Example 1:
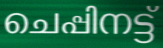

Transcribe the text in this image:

ചെപ്പിനട്ട്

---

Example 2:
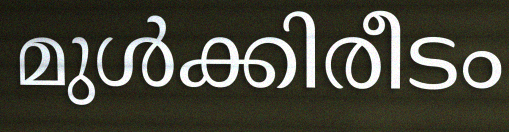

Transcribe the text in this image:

മുൾക്കിരീടം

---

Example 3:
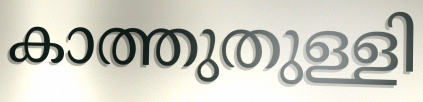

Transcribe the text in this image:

കാത്തുതുള്ളി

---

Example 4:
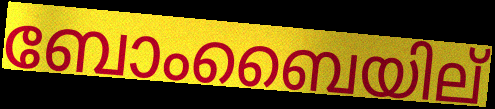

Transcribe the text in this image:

ബോംബൈയില്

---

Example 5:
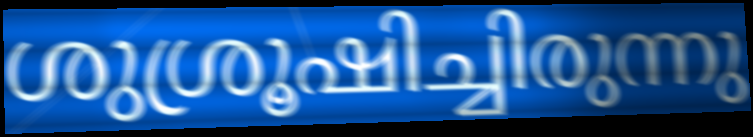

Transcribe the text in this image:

ശുശ്രൂഷിച്ചിരുന്നു